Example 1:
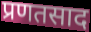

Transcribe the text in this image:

प्रणतसाद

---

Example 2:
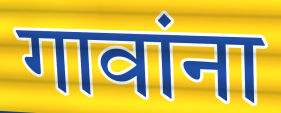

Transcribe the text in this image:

गावांना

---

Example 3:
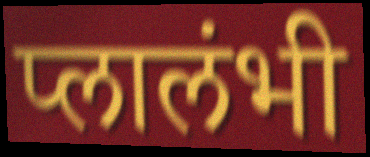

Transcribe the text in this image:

प्लालंभी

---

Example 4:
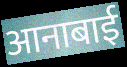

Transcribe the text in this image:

आनाबाई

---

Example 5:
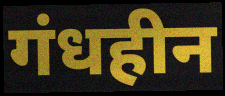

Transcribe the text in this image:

गंधहीन